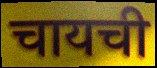
चायची